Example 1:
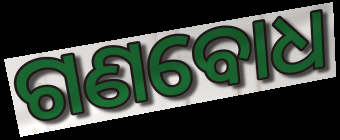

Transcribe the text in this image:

ଗଣବୋଧ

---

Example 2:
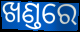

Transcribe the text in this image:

ଖଣ୍ଡରେ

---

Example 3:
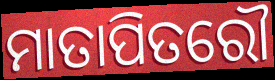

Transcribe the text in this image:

ମାତାପିତରୌ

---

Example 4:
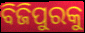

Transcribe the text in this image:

ବିଜିପୁରକୁ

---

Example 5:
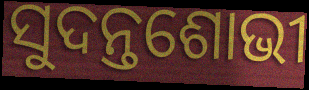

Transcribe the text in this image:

ସୁଦନ୍ତଶୋଭୀ